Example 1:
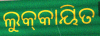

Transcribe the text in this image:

ଲୁକ୍‌କାୟିତ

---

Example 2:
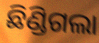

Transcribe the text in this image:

ଛିଣ୍ଡିଗଲା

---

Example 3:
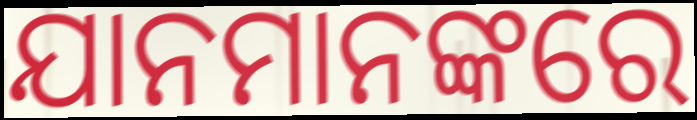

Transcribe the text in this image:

ଯାନମାନଙ୍କରେ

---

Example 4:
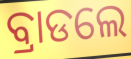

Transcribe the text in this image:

ବ୍ରାଡଲେ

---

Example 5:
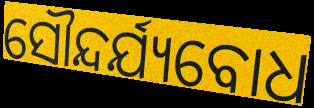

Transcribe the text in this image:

ସୌନ୍ଦର୍ଯ୍ୟବୋଧ